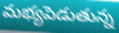
మభ్యపెడుతున్న